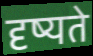
दृष्यते